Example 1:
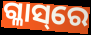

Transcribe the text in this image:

ଗ୍ଳାସ୍‌ରେ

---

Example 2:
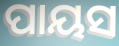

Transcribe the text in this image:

ପାୟସ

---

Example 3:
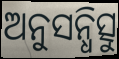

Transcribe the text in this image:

ଅନୁସନ୍ଧିତ୍ସୁ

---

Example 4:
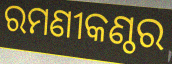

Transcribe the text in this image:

ରମଣୀକଣ୍ଠର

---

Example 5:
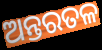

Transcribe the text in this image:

ଅନ୍ତରତଳ